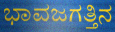
ಭಾವಜಗತ್ತಿನ